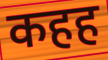
कहह